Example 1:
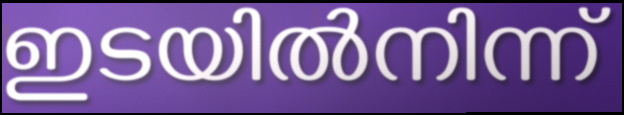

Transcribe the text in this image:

ഇടയിൽനിന്ന്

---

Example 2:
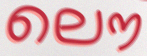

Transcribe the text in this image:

ലൌ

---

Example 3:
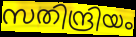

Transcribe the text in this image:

സതിന്ദ്രിയം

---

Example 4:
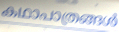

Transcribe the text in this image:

കഥാപാത്രങ്ങൾ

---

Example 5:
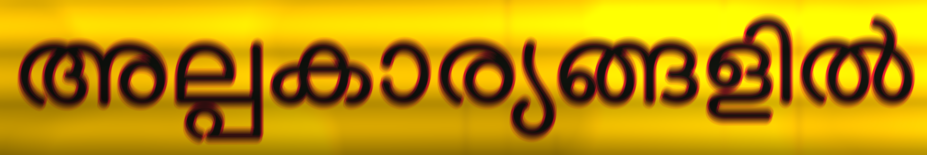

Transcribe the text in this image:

അല്പകാര്യങ്ങളിൽ